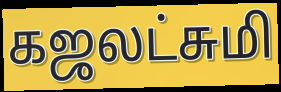
கஜலட்சுமி